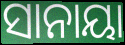
ସାନାୟା